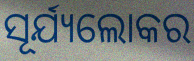
ସୂର୍ଯ୍ୟଲୋକର